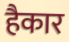
हैकार